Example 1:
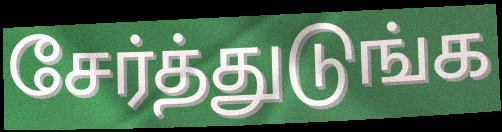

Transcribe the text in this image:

சேர்த்துடுங்க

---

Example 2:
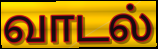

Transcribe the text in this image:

வாடல்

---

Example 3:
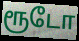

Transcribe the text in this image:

ரூடோ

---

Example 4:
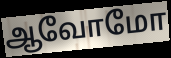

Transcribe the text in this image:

ஆவோமோ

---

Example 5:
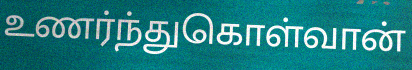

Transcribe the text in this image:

உணர்ந்துகொள்வான்